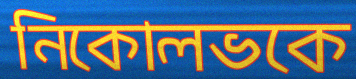
নিকোলভকে